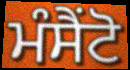
ਮੰਸੈਂਟੋ